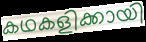
കഥകളിക്കായി